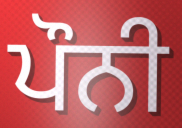
ਪੌਨੀ